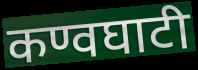
कण्वघाटी